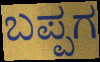
ಬಪ್ಪಗ